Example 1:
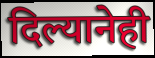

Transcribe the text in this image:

दिल्यानेही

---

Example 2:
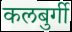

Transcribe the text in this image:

कलबुर्गी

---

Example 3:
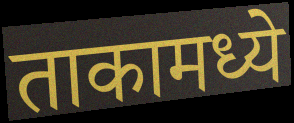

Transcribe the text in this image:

ताकामध्ये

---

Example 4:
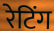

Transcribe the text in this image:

रेटिंग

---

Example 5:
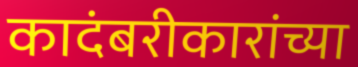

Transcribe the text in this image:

कादंबरीकारांच्या